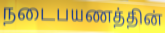
நடைபயணத்தின்